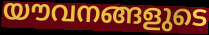
യൗവനങ്ങളുടെ